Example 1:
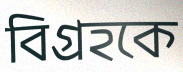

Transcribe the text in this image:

বিগ্রহকে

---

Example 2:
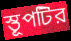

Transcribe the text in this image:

স্তূপটির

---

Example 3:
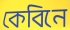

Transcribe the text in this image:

কেবিনে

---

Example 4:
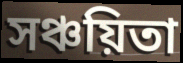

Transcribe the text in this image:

সঞ্চয়িতা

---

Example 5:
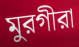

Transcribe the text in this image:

মুরগীরা